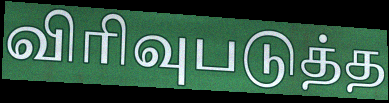
விரிவுபடுத்த